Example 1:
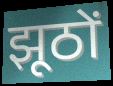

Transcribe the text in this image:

झूठों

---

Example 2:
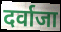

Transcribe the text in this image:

दर्वाजा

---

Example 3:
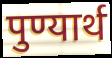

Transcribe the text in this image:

पुण्यार्थ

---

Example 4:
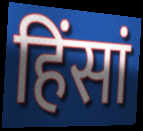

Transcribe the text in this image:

हिंसां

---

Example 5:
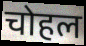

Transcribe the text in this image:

चोहल